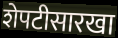
शेपटीसारखा